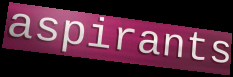
aspirants